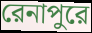
রেনাপুরে